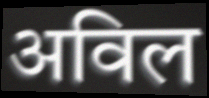
अविल